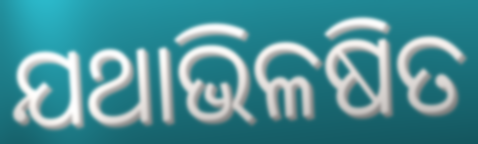
ଯଥାଭିଳଷିତ